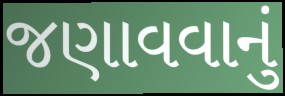
જણાવવાનું